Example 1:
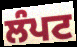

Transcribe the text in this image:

ਲੰਪਟ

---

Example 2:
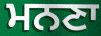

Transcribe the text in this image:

ਮਨਣਾ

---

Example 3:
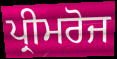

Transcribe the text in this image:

ਪ੍ਰੀਮਰੋਜ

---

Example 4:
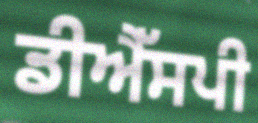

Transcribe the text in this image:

ਡੀਐੱਸਪੀ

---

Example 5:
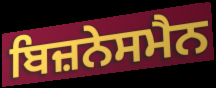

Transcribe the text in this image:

ਬਿਜ਼ਨੇਸਮੈਨ